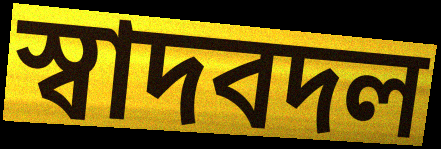
স্বাদবদল